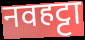
नवहट्टा